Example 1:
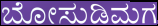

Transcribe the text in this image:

ಬೋಸುಡಿಮಗ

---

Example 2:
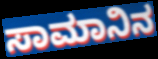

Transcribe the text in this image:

ಸಾಮಾನಿನ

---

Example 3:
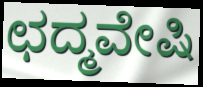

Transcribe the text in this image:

ಛದ್ಮವೇಷಿ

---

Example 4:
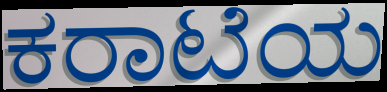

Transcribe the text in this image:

ಕರಾಟೆಯ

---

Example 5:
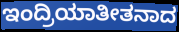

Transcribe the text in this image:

ಇಂದ್ರಿಯಾತೀತನಾದ